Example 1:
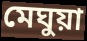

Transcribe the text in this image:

মেঘুয়া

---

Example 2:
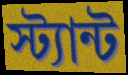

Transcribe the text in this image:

স্ট্যান্ট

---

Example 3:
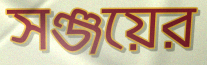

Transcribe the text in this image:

সঞ্জয়ের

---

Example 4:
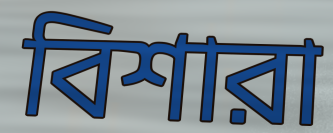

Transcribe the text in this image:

বিশারা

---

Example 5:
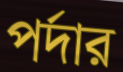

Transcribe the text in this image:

পর্দার